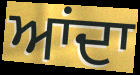
ਆਂਦਾ